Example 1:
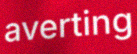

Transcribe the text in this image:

averting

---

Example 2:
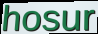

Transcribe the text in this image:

hosur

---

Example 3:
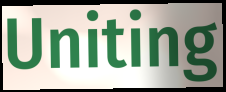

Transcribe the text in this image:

Uniting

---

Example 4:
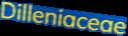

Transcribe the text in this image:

Dilleniaceae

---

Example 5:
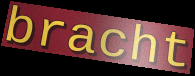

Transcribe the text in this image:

bracht